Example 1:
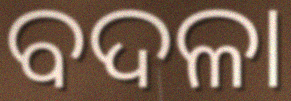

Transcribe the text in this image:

ବଦଳା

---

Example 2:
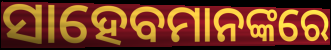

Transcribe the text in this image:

ସାହେବମାନଙ୍କରେ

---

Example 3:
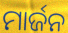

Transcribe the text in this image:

ମାର୍ଜନ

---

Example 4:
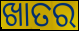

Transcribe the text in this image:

ଖାତର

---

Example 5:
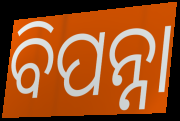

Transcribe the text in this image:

ବିପନ୍ନା